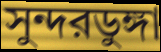
সুন্দরডুঙ্গা